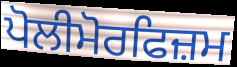
ਪੋਲੀਮੋਰਫਿਜ਼ਮ